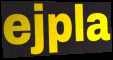
ejpla